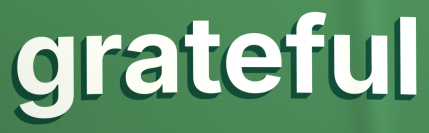
grateful